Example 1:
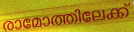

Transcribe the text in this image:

രാമോത്തിലേക്ക്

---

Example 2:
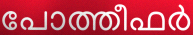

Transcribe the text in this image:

പോത്തീഫർ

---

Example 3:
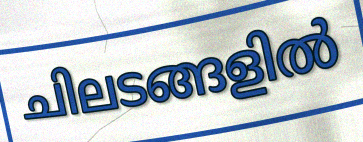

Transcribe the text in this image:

ചിലടങ്ങളിൽ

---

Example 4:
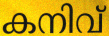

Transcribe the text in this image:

കനിവ്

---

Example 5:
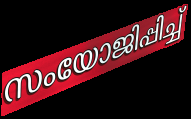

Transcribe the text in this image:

സംയോജിപ്പിച്ച്